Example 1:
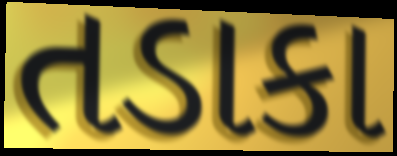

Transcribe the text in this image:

તડાકા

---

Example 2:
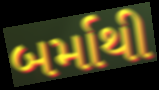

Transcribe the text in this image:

બર્માથી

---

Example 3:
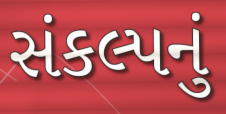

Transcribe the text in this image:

સંકલ્પનું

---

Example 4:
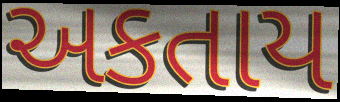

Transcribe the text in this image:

અકતાય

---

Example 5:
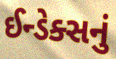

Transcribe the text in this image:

ઈન્ડેક્સનું